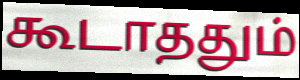
கூடாததும்